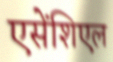
एसेंशिएल